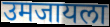
उमजायला